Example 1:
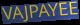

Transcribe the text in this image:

VAJPAYEE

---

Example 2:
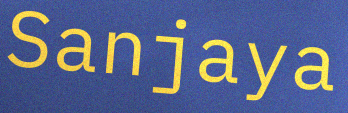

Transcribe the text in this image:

Sanjaya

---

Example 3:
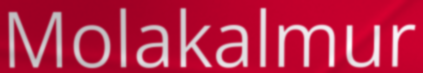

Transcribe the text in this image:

Molakalmur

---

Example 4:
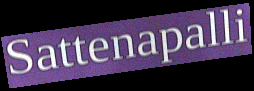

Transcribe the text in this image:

Sattenapalli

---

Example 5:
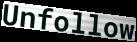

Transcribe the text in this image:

Unfollow